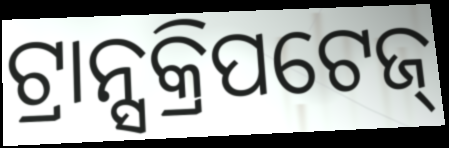
ଟ୍ରାନ୍ସକ୍ରିପଟେଜ୍